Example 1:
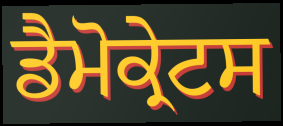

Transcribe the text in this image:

ਡੈਮੋਕ੍ਰੇਟਸ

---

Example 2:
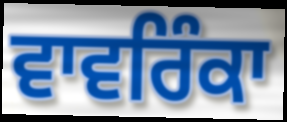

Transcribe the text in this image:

ਵਾਵਰਿੰਕਾ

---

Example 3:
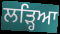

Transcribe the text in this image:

ਲੜ੍ਹਿਆ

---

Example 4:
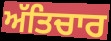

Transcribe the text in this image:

ਅੱਤਿਚਾਰ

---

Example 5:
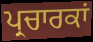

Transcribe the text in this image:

ਪ੍ਰਚਾਰਕਾਂ